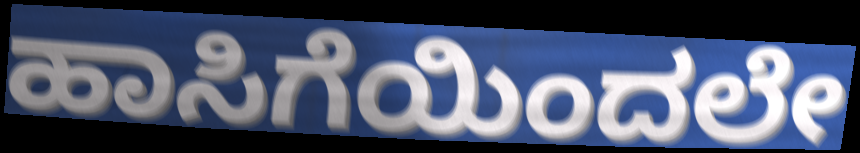
ಹಾಸಿಗೆಯಿಂದಲೇ